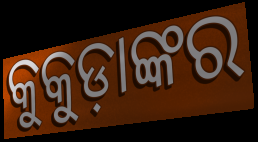
କୁକୁଡ଼ାଙ୍କର